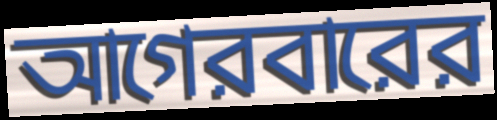
আগেরবারের